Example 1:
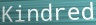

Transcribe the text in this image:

Kindred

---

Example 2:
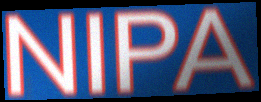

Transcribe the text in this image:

NIPA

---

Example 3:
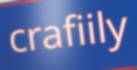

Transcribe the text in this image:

crafiily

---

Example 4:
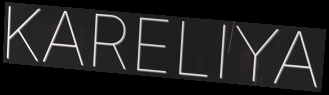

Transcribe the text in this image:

KARELIYA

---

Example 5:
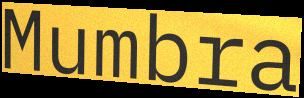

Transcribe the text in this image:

Mumbra